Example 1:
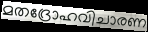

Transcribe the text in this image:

മതദ്രോഹവിചാരണ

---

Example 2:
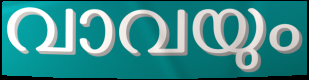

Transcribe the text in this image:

വാവയും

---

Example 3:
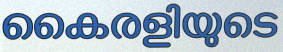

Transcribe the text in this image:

കൈരളിയുടെ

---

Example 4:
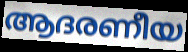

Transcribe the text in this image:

ആദരണീയ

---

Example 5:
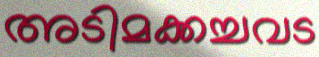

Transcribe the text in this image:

അടിമക്കച്ചവട